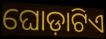
ଘୋଡ଼ାଟିଏ